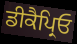
ਡੀਕੈਪ੍ਰਿਓ